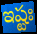
ఇష్టః